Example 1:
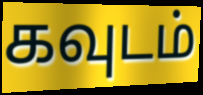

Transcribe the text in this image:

கவுடம்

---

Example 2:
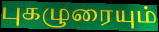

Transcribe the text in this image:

புகழுரையும்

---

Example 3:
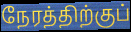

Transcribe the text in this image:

நேரத்திற்குப்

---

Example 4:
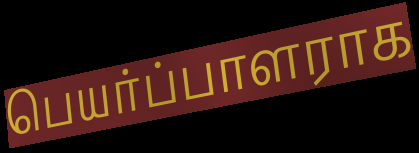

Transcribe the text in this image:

பெயர்ப்பாளராக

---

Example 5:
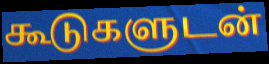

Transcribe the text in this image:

கூடுகளுடன்